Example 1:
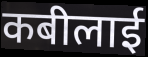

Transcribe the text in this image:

कबीलाई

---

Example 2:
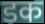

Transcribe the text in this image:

डक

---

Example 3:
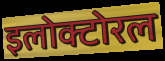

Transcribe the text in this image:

इलोक्टोरल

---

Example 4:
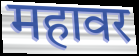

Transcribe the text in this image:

महावर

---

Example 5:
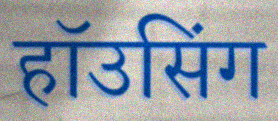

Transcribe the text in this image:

हॉउसिंग